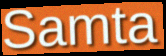
Samta